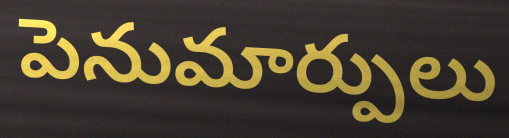
పెనుమార్పులు